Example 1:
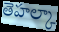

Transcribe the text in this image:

తెహల్కా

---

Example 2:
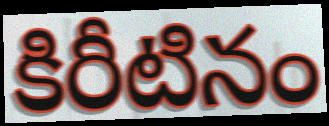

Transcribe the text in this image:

కిరీటినం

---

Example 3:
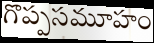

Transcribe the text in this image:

గొప్పసమూహం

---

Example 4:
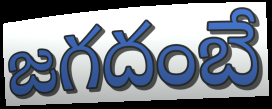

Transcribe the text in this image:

జగదంబే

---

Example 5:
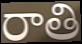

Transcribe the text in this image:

రాతి